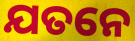
ଯତନେ